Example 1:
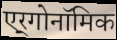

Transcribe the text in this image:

एर्गोनॉमिक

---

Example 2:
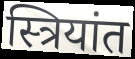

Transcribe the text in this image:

स्त्रियांत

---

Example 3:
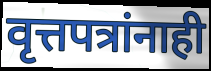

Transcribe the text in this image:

वृत्तपत्रांनाही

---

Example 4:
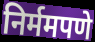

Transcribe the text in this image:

निर्ममपणे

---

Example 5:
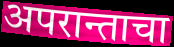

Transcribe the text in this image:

अपरान्ताचा